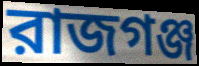
রাজগঞ্জ